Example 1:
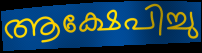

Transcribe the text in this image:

ആക്ഷേപിച്ചു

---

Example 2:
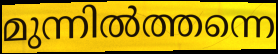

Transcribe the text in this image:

മുന്നിൽത്തന്നെ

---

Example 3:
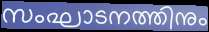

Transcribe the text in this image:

സംഘാടനത്തിനും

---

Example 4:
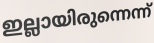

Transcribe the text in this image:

ഇല്ലായിരുന്നെന്ന്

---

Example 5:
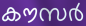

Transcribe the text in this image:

കൗസർ